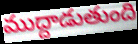
ముద్దాడుతుంది